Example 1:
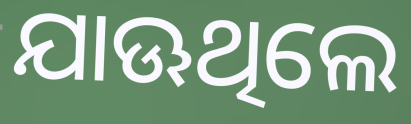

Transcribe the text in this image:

ଯାଊଥିଲେ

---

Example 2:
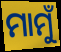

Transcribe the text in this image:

ମାମୁଁ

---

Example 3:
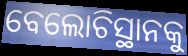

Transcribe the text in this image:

ବେଲୋଚିସ୍ଥାନକୁ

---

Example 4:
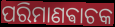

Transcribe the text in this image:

ପରିମାଣଵାଚକ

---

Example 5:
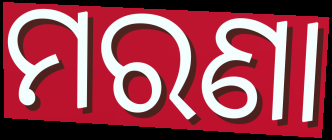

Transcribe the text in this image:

ମରଣା